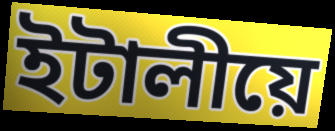
ইটালীয়ে